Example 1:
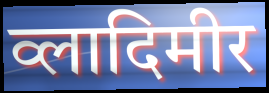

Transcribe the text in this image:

व्‍लादिमीर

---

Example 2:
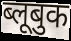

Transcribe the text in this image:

ब्लूबुक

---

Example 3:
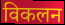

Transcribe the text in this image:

विकलन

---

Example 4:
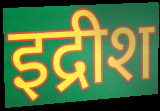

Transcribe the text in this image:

इद्रीश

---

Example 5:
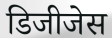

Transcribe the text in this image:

डिजीजेस